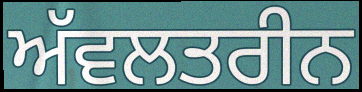
ਅੱਵਲਤਰੀਨ